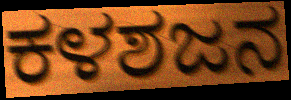
ಕಳಶಜನ